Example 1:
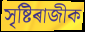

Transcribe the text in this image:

সৃষ্টিৰাজীক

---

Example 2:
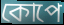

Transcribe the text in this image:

কোপে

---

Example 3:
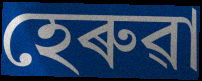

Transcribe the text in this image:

হেৰুৱা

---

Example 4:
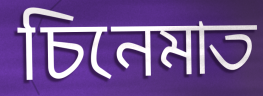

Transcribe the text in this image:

চিনেমাত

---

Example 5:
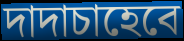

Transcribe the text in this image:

দাদাচাহেবে